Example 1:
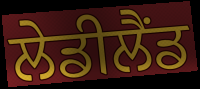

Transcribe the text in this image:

ਲੇਡੀਲੈਂਡ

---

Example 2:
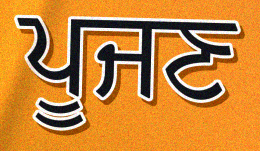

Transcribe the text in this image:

ਪੂਜਣ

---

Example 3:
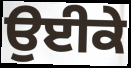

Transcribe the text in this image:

ਉਈਕੇ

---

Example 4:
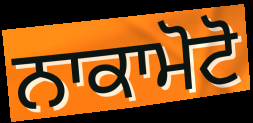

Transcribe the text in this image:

ਨਾਕਾਮੋਟੋ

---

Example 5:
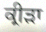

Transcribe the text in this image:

ਕ੍ਰੀੜਾ